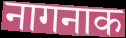
नागनाक